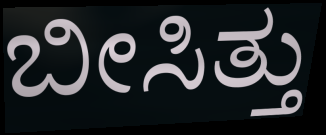
ಬೀಸಿತ್ತು